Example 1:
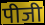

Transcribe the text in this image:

पीजी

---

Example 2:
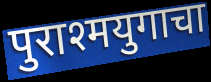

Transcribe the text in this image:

पुराश्मयुगाचा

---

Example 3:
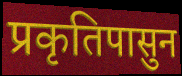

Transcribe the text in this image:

प्रकृतिपासुन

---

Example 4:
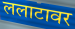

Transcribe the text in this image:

ललाटावर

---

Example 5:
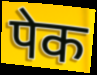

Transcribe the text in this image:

पेक